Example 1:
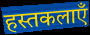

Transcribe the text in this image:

हस्तकलाएँ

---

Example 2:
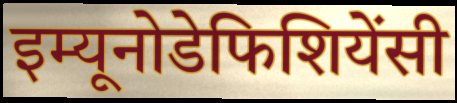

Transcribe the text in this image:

इम्यूनोडेफिशियेंसी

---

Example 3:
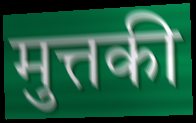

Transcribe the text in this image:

मुत्तकी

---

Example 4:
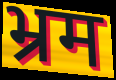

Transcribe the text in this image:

भ्रम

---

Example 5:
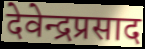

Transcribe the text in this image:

देवेन्द्रप्रसाद